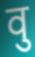
वु